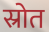
स्रोत